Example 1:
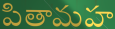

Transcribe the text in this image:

పితామహ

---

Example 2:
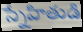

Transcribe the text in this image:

స్నేహితుడి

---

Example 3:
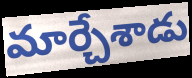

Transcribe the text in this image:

మార్చేశాడు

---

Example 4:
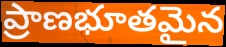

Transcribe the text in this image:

ప్రాణభూతమైన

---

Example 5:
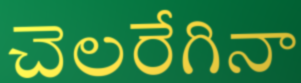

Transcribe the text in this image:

చెలరేగినా